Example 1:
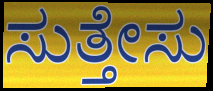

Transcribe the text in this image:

ಸುತ್ತೇಸು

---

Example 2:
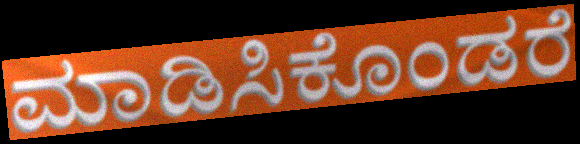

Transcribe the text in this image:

ಮಾಡಿಸಿಕೊಂಡರೆ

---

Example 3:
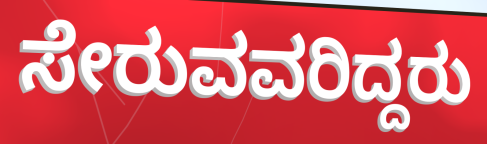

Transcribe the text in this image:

ಸೇರುವವರಿದ್ದರು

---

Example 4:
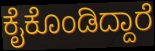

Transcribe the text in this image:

ಕೈಕೊಂಡಿದ್ದಾರೆ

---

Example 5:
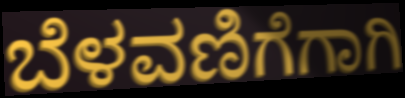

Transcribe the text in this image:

ಬೆಳವಣಿಗೆಗಾಗಿ